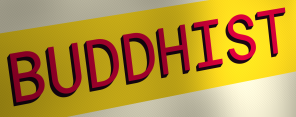
BUDDHIST